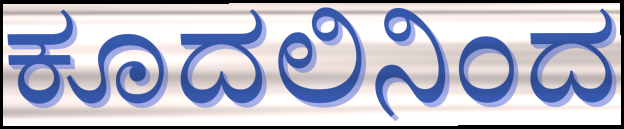
ಕೂದಲಿನಿಂದ